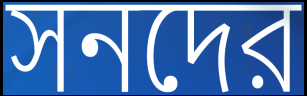
সনদের